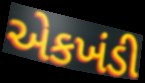
એકખંડી